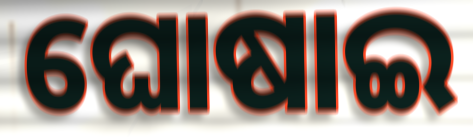
ଘୋଷାଇ